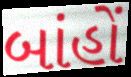
બાંહોં